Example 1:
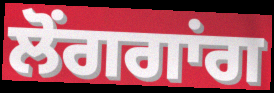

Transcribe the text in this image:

ਲੋਂਗਗਾਂਗ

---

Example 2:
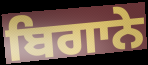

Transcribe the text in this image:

ਬਿਗਾਨੇ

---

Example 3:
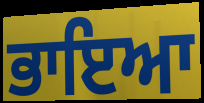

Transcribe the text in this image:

ਭਾਇਆ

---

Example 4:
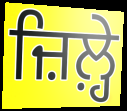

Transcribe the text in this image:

ਜ਼ਿਲ਼੍ਹੇ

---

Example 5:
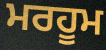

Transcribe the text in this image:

ਮਰਹੂਮ